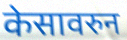
केसावरुन